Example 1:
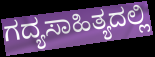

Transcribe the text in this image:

ಗದ್ಯಸಾಹಿತ್ಯದಲ್ಲಿ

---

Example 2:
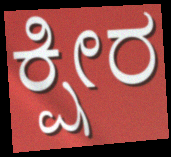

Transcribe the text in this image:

ಕ್ಷೀರ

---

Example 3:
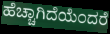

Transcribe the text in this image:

ಹೆಚ್ಚಾಗಿದೆಯೆಂದರೆ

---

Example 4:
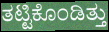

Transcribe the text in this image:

ತಟ್ಟಿಕೊಂಡಿತ್ತು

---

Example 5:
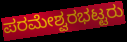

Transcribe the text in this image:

ಪರಮೇಶ್ವರಭಟ್ಟರು